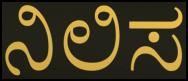
ನಿಲಿಸ